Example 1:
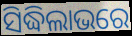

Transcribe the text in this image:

ସିଦ୍ଧିଲାଭରେ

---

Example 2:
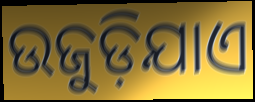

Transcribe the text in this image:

ଉଜୁଡ଼ିଯାଏ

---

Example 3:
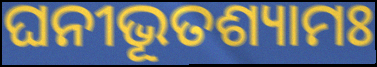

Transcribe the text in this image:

ଘନୀଭୂତଶ୍ୟାମଃ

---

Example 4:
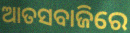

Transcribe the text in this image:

ଆତସବାଜିରେ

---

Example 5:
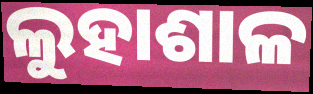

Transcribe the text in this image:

ଲୁହାଶାଳ